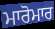
ਮਾਰੋਮਾਰ